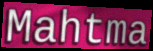
Mahtma